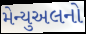
મેન્યુઅલનો